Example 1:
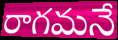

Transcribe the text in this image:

రాగమనే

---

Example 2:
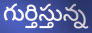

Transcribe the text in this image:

గుర్తిస్తున్న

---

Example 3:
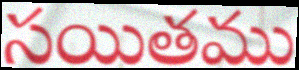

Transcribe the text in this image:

సయితము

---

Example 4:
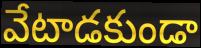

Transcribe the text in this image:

వేటాడకుండా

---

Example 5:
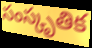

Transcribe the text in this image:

సంస్కృతిక